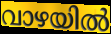
വാഴയിൽ